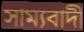
সাম্যবাদী